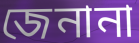
জেনানা